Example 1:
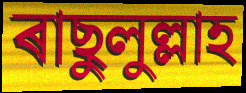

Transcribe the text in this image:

ৰাছুলুল্লাহ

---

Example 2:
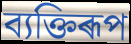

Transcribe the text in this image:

ব্যক্তিৰূপ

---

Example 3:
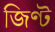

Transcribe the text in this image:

জিণ্ট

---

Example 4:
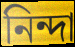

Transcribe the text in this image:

নিন্দা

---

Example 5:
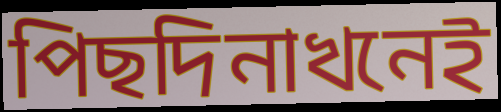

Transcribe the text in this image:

পিছদিনাখনেই